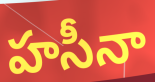
హసీనా